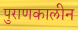
पुराणकालीन